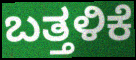
ಬತ್ತಳಿಕೆ